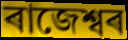
ৰাজেশ্বৰ